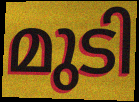
മുടി